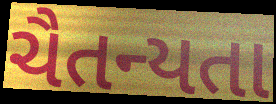
ચૈતન્યતા